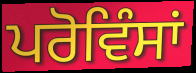
ਪਰੋਵਿੰਸਾਂ